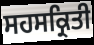
ਸਹਸਕ੍ਰਿਤੀ